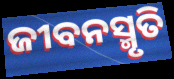
ଜୀବନସ୍ମୃତି